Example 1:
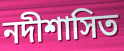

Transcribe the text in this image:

নদীশাসিত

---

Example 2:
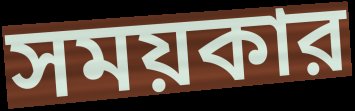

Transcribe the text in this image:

সময়কার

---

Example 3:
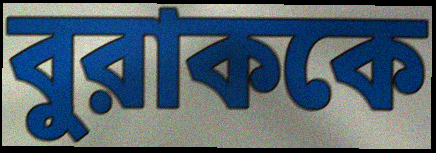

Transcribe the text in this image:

বুরাককে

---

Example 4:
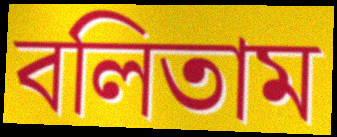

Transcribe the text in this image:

বলিতাম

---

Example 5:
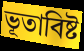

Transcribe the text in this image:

ভূতাবিষ্ট